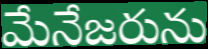
మేనేజరును